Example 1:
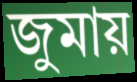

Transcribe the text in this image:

জুমায়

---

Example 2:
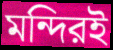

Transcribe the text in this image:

মন্দিরই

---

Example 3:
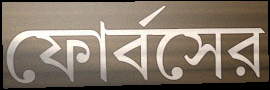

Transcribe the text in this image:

ফোর্বসের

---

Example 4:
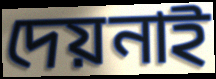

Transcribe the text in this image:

দেয়নাই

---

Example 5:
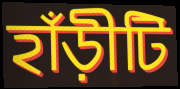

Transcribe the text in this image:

হাঁড়ীটি